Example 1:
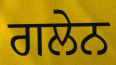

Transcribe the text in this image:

ਗਲੇਨ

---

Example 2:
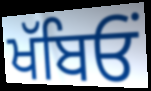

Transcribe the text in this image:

ਖੱਬਿਓਂ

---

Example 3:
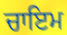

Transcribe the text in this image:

ਚਾਇਮ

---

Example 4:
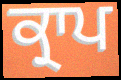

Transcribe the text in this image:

ਕ੍ਰਾਪ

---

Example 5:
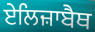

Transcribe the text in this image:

ਏਲਿਜ਼ਾਬੈਥ